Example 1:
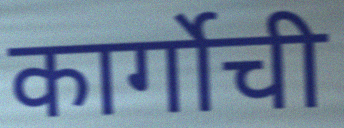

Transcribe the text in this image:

कार्गोची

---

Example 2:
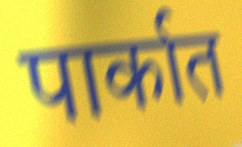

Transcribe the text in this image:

पार्कात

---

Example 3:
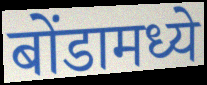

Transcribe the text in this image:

बोंडामध्ये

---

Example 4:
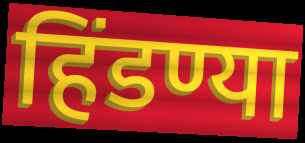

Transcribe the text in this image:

हिंडण्या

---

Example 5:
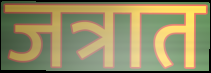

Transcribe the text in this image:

जत्रात